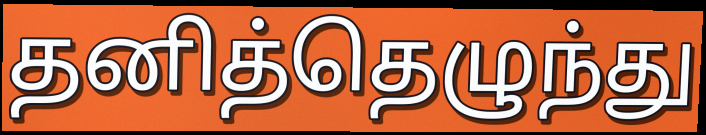
தனித்தெழுந்து